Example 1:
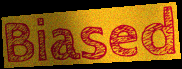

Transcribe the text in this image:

Biased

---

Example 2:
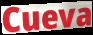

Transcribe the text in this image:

Cueva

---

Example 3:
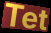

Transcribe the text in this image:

Tet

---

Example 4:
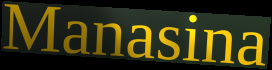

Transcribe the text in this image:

Manasina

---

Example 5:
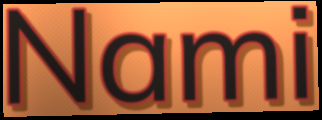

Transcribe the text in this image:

Nami